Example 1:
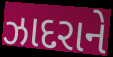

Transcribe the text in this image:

ઝાદરાને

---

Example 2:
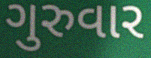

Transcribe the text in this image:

ગુરુવાર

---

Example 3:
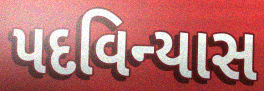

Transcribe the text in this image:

પદવિન્યાસ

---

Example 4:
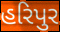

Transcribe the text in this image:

હરિપુર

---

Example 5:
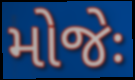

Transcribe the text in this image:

મોજેઃ